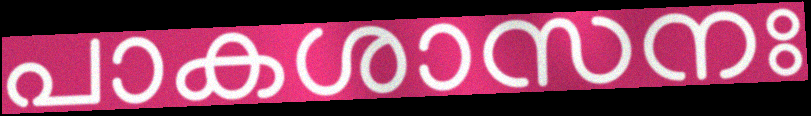
പാകശാസനഃ